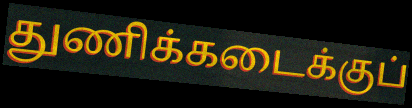
துணிக்கடைக்குப்